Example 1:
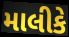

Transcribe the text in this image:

માલીકે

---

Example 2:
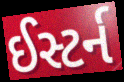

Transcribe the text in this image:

ઈસ્ટર્ન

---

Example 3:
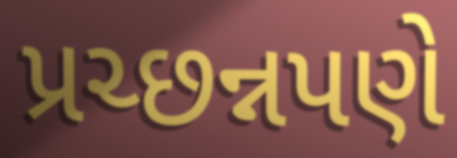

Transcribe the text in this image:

પ્રચ્છન્નપણે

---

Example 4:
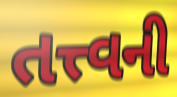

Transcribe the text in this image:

તત્ત્વની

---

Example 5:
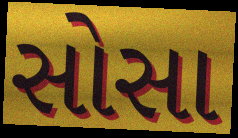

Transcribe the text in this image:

સોસા